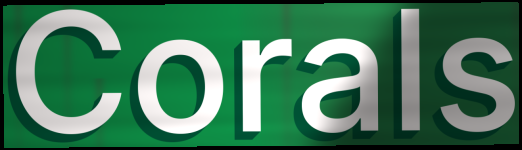
Corals